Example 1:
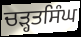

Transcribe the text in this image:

ਚੜ੍ਹਤਸਿੰਘ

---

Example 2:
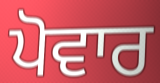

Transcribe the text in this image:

ਪੋਵਾਰ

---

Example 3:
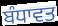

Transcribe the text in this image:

ਬੰਧਾਵਤ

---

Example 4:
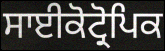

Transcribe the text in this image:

ਸਾਈਕੋਟ੍ਰੋਪਿਕ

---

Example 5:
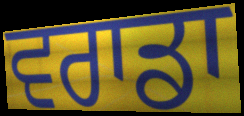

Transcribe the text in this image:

ਵਰਾਡਾ